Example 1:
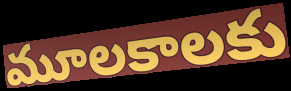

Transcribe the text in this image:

మూలకాలకు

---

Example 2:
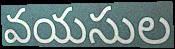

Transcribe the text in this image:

వయసుల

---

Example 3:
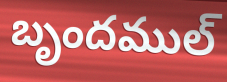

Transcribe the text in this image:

బృందముల్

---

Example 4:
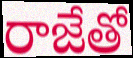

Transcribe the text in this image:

రాజేతో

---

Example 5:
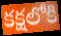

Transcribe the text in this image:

కక్షలోకి